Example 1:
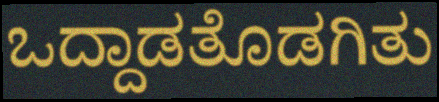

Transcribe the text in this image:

ಒದ್ದಾಡತೊಡಗಿತು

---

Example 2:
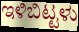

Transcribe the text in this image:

ಇಳಿಬಿಟ್ಟಳು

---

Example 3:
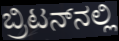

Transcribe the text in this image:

ಬ್ರಿಟನ್‌ನಲ್ಲಿ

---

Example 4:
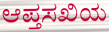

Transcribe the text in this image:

ಆಪ್ತಸಖಿಯ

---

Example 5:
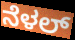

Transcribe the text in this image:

ನೆಳಲ್